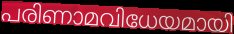
പരിണാമവിധേയമായി